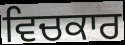
ਵਿਚਕਾਰ